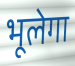
भूलेगा